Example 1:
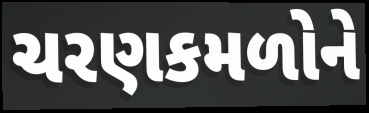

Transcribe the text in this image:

ચરણકમળોને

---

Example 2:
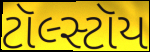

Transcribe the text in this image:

ટૉલ્સ્ટૉય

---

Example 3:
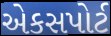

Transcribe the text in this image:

એકસપોર્ટ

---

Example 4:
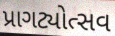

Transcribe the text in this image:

પ્રાગટ્યોત્સવ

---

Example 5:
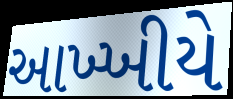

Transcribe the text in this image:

આખ્ખીયે